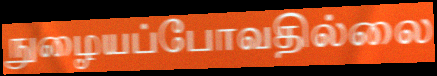
நுழையப்போவதில்லை